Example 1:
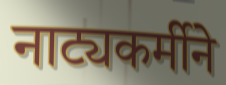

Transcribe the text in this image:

नाट्यकर्मीने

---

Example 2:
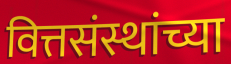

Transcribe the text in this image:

वित्तसंस्थांच्या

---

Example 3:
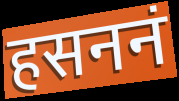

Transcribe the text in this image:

हसननं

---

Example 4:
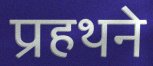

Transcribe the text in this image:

प्रहथने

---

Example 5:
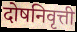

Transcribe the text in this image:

दोषनिवृत्ती